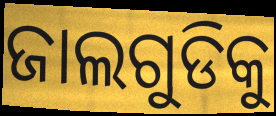
ଜାଲଗୁଡିକୁ